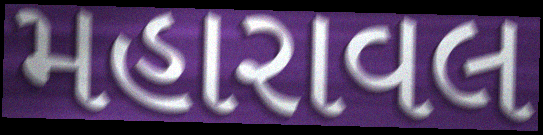
મહારાવલ